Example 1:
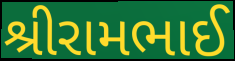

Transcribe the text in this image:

શ્રીરામભાઈ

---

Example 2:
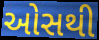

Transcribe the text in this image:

ઓસથી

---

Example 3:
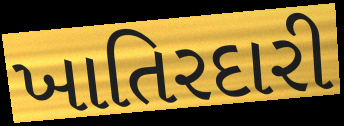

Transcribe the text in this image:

ખાતિરદારી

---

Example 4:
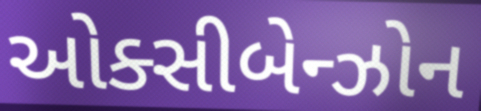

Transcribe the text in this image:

ઓક્સીબેન્ઝોન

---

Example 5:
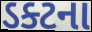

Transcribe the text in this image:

ડક્ટના